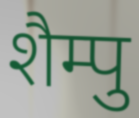
शैम्पु